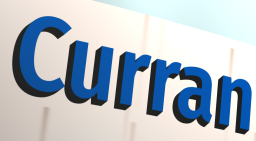
Curran